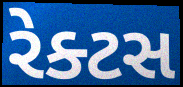
રેક્ટસ